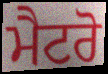
ਮੈਟਰੋ